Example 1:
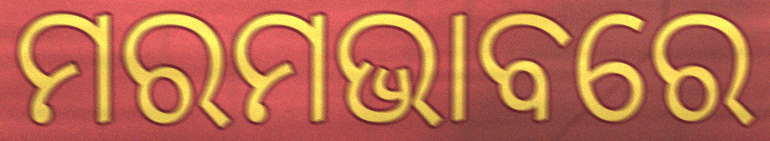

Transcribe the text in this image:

ମରମଭାବରେ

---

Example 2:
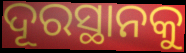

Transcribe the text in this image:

ଦୂରସ୍ଥାନକୁ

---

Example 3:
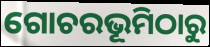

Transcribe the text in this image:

ଗୋଚରଭୂମିଠାରୁ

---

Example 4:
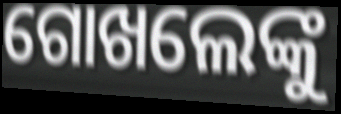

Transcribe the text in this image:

ଗୋଖଲେଙ୍କୁ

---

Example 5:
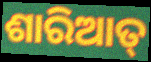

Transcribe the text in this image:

ଶାରିଆତ୍